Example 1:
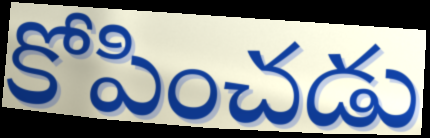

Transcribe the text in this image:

కోపించడు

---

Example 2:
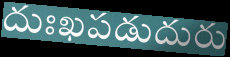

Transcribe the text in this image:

దుఃఖపడుదురు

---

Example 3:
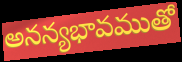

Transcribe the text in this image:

అనన్యభావముతో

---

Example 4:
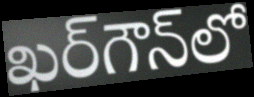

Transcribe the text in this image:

ఖర్‌గౌన్‌లో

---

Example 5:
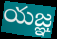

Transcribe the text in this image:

యజ్ఞ